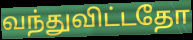
வந்துவிட்டதோ